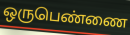
ஒருபெண்ணை